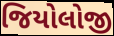
જિયોલોજી